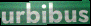
urbibus